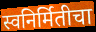
स्वनिर्मितीचा